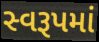
સ્વરૂપમાં